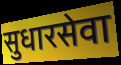
सुधारसेवा